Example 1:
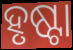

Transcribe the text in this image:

ହୃଷ୍ଟା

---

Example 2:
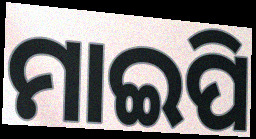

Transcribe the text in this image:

ମାଇପି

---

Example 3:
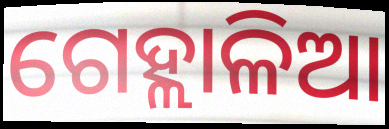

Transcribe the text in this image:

ଗେହ୍ଲାଳିଆ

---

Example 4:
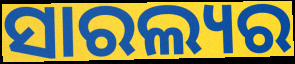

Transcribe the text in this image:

ସାରଲ୍ୟର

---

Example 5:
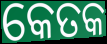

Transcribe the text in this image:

କେତକ